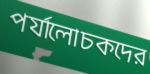
পর্যালোচকদের